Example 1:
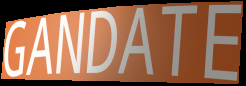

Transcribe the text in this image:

GANDATE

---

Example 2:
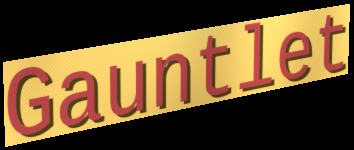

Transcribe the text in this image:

Gauntlet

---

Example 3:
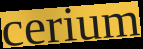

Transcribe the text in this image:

cerium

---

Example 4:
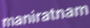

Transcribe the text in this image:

maniratnam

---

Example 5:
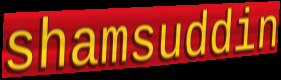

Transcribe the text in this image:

shamsuddin